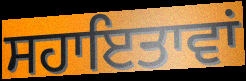
ਸਹਾਇਤਾਵਾਂ